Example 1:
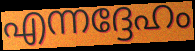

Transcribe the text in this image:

എന്നദ്ദേഹം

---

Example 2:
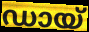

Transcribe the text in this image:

ഡായ്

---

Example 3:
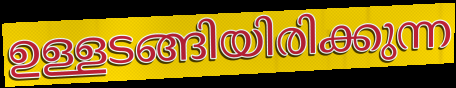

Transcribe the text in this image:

ഉള്ളടങ്ങിയിരിക്കുന്ന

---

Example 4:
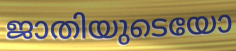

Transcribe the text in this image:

ജാതിയുടെയോ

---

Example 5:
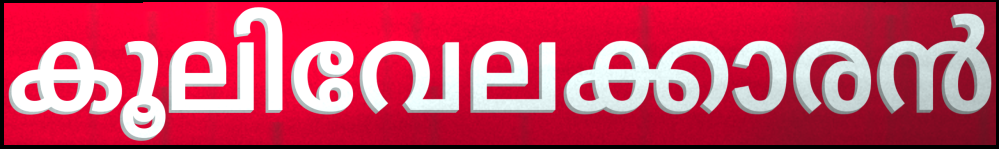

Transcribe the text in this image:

കൂലിവേലക്കാരൻ